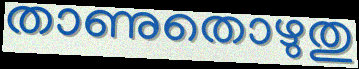
താണുതൊഴുതു